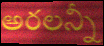
అరలన్నీ